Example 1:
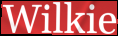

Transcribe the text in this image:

Wilkie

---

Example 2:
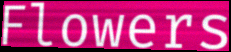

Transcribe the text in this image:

Flowers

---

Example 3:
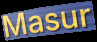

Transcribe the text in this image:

Masur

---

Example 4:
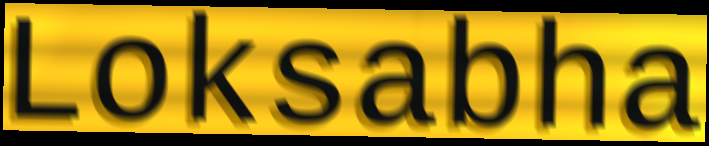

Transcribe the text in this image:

Loksabha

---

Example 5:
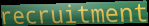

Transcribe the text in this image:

recruitment